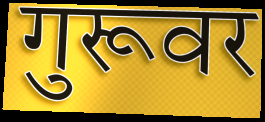
गुरूवर